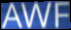
AWF